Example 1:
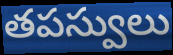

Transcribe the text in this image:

తపస్వులు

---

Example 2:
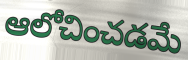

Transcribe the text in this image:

ఆలోచించడమే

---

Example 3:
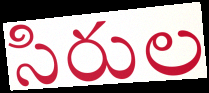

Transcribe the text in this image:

సిరుల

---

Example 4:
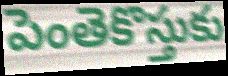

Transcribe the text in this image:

పెంతెకొస్తుకు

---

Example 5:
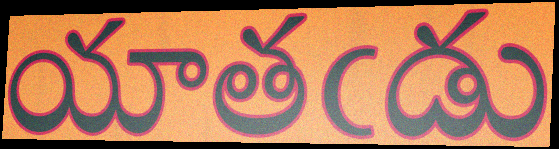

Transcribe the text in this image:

యాతఁడు